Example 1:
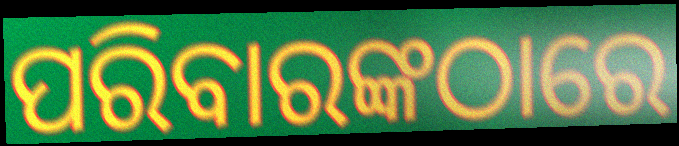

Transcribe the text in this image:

ପରିବାରଙ୍କଠାରେ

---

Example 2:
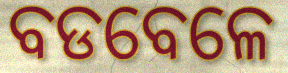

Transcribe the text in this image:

ବଡବେଳେ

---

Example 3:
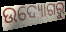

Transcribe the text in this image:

ଉଦ୍ୟୋଗରୁ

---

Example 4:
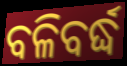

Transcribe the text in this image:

ବଳିବର୍ଦ୍ଧ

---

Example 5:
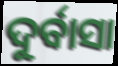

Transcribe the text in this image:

ଦୁର୍ବାସା